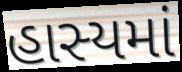
હાસ્યમાં